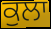
ਕੁਲਾ